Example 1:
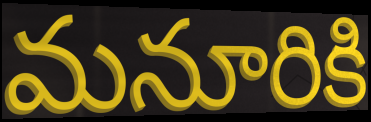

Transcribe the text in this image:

మనూరికి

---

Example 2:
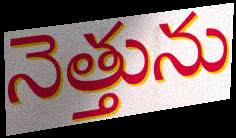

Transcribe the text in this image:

నెత్తును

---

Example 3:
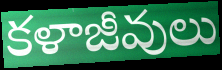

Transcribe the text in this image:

కళాజీవులు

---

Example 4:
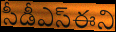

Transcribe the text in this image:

సీడీఎస్ఈని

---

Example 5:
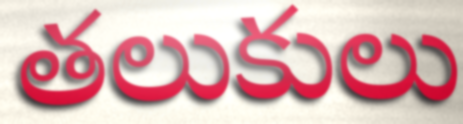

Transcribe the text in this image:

తలుకులు